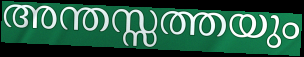
അന്തസ്സത്തയും